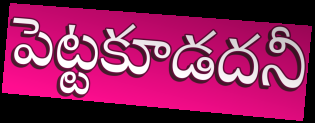
పెట్టకూడదనీ